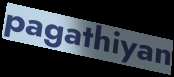
pagathiyan